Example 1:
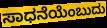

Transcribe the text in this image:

ಸಾಧನೆಯೆಂಬುದು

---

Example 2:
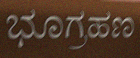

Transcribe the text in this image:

ಭೂಗ್ರಹಣ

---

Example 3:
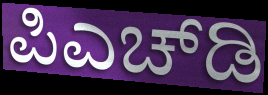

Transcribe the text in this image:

ಪಿಎಚ್‌ಡಿ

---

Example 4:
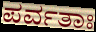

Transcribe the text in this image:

ಪರ್ವತಾಃ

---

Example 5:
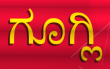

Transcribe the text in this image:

ಗೂಗ್ಲಿ